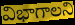
విభాగాలని